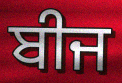
ਬੀਜ